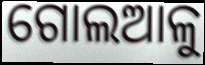
ଗୋଲଆଳୁ